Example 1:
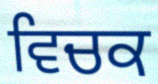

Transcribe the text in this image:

ਵਿਚਕ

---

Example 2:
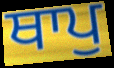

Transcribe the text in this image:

ਥਾਪੁ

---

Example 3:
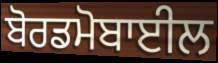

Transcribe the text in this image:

ਬੋਰਡਮੋਬਾਈਲ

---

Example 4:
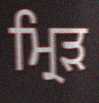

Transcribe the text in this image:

ਮ੍ਰਿੜ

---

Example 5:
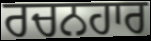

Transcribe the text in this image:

ਰਚਨਹਾਰ